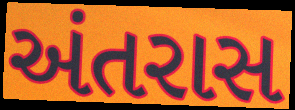
અંતરાસ